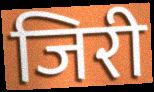
जिरी